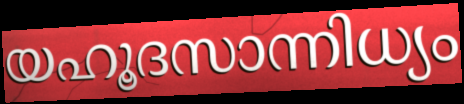
യഹൂദസാന്നിധ്യം